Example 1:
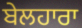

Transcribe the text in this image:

ਬੇਲਹਾਰਾ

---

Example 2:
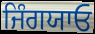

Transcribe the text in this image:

ਜਿੰਗਯਾਓ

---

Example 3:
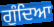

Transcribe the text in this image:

ਗੁੰਦਿਆ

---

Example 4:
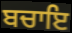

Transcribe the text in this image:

ਬਚਾਇ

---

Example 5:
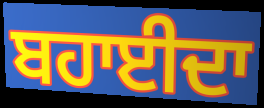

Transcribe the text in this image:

ਬਹਾਈਦਾ